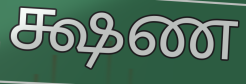
க்ஷண